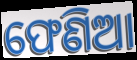
ଫେଣିଆ